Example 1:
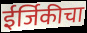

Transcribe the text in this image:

ईर्जिकीचा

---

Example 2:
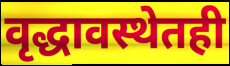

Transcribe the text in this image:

वृद्धावस्थेतही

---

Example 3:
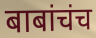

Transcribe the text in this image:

बाबांचंच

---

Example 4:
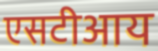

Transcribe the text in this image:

एसटीआय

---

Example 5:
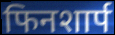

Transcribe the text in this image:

फिनशार्प